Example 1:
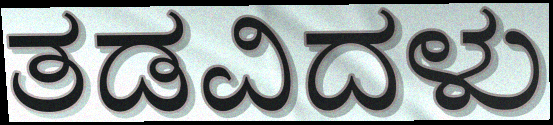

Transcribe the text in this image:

ತಡವಿದಳು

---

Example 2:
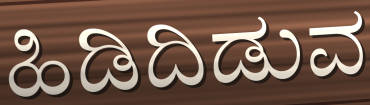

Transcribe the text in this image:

ಹಿಡಿದಿಡುವ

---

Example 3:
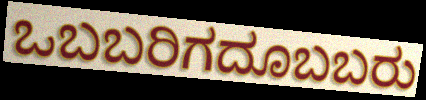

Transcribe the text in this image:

ಒಬಬರಿಗದೂಬಬರು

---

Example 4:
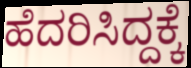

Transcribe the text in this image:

ಹೆದರಿಸಿದ್ದಕ್ಕೆ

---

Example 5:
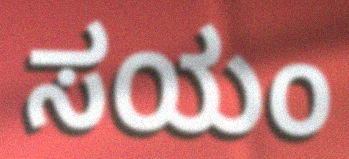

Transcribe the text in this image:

ಸಯಂ